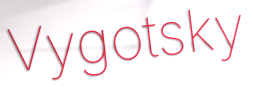
Vygotsky